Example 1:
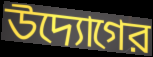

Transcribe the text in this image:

উদ্যোগের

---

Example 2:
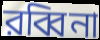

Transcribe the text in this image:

রব্বিনা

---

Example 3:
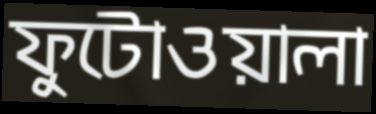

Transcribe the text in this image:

ফুটোওয়ালা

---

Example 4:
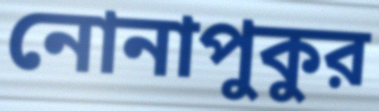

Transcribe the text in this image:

নোনাপুকুর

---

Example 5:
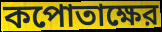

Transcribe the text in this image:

কপোতাক্ষের